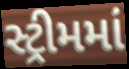
સ્ટ્રીમમાં